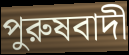
পুরুষবাদী